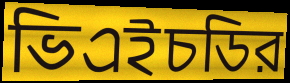
ভিএইচডির